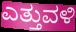
ಎತ್ತುವಳಿ